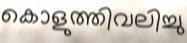
കൊളുത്തിവലിച്ചു